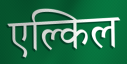
एल्किल